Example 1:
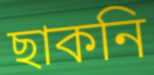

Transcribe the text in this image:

ছাকনি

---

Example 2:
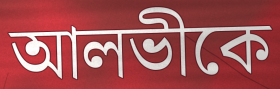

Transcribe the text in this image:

আলভীকে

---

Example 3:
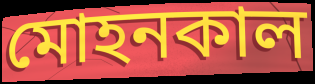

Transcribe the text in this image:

মোহনকাল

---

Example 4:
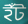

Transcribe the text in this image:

ইঁট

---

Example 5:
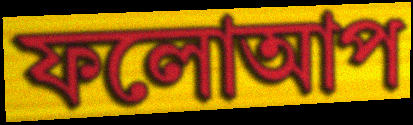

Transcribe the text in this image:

ফলোআপ